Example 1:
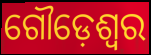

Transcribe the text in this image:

ଗୌଡ଼େଶ୍ୱର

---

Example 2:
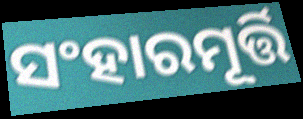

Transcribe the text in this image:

ସଂହାରମୂର୍ତ୍ତି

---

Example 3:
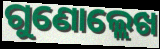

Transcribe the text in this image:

ଗୁଣୋଲ୍ଲେଖ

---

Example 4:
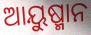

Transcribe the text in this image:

ଆୟୁଷ୍ମାନ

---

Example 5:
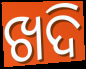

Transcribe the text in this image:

ଖଦି